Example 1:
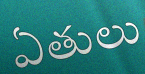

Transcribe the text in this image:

ఏతులు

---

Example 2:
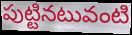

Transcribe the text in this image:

పుట్టినటువంటి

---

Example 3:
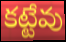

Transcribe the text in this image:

కట్టేవు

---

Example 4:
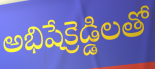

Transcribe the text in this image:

అభిషేక్రెడ్డిలతో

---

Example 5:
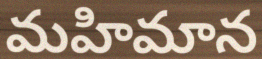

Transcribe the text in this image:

మహిమాన